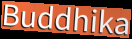
Buddhika